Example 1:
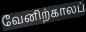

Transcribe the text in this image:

வேனிற்காலப்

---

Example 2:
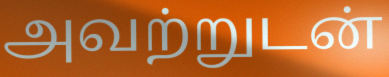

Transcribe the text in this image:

அவற்றுடன்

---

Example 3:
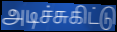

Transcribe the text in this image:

அடிச்சுகிட்டு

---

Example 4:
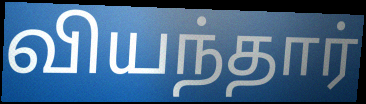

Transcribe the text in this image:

வியந்தார்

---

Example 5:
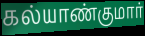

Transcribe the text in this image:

கல்யாண்குமார்